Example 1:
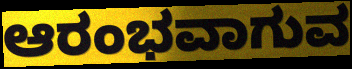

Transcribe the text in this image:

ಆರಂಭವಾಗುವ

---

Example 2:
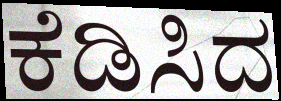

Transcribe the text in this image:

ಕೆಡಿಸಿದ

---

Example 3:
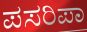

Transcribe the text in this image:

ಪಸರಿಪಾ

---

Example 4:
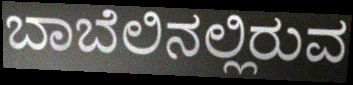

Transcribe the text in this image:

ಬಾಬೆಲಿನಲ್ಲಿರುವ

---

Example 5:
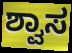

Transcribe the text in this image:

ಶ್ವಾಸ